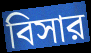
বিসার